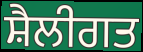
ਸ਼ੈਲੀਗਤ